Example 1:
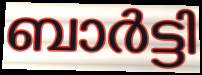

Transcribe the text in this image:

ബാർട്ടി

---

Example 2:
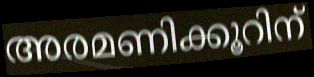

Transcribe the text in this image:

അരമണിക്കൂറിന്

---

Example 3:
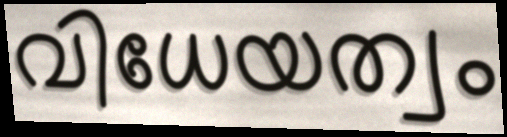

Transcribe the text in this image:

വിധേയത്വം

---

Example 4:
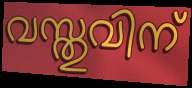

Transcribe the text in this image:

വസ്തുവിന്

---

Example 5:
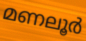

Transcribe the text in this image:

മണലൂർ